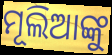
ମୂଲିଆଙ୍କୁ